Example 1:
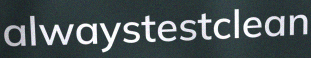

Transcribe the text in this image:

alwaystestclean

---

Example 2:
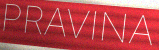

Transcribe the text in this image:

PRAVINA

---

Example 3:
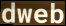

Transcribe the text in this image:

dweb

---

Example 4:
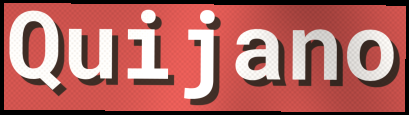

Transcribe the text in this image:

Quijano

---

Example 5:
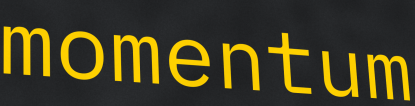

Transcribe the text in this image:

momentum